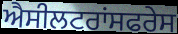
ਐਸੀਲਟਰਾਂਸਫਰੇਸ